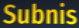
Subnis